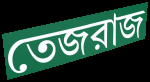
তেজরাজ